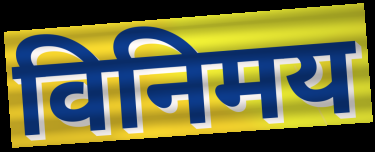
विनिमय